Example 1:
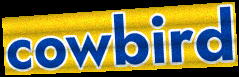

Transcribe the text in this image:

cowbird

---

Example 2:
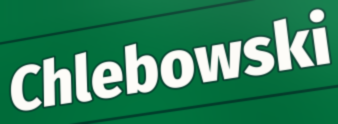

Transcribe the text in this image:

Chlebowski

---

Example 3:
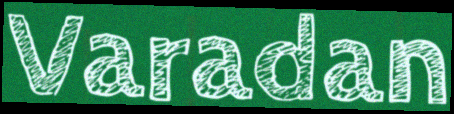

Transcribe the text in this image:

Varadan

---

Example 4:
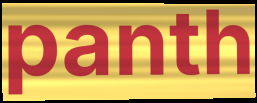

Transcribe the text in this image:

panth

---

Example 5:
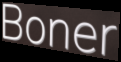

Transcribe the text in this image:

Boner